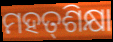
ମହତ୍‌ଶିକ୍ଷା